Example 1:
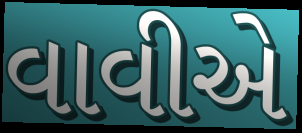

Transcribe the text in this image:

વાવીએ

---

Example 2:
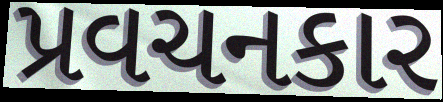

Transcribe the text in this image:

પ્રવચનકાર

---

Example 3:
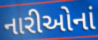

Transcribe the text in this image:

નારીઓનાં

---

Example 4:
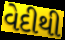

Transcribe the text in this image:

વેદીથી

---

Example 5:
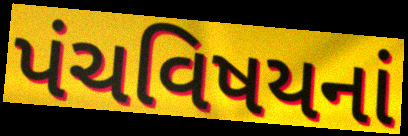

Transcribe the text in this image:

પંચવિષયનાં